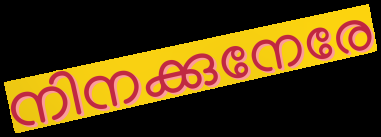
നിനക്കുനേരേ